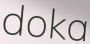
doka